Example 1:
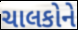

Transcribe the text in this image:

ચાલકોને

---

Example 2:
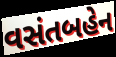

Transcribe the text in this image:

વસંતબહેન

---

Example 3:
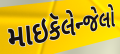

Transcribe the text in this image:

માઇકૅલેન્જેલો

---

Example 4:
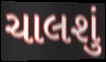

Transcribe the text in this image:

ચાલશું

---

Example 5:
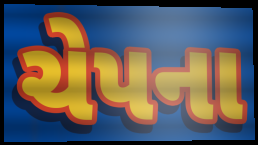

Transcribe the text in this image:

ચેપના